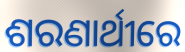
ଶରଣାର୍ଥୀରେ